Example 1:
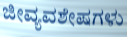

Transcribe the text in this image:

ಜೀವ್ಯವಶೇಷಗಳು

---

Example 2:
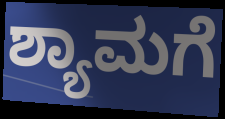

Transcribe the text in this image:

ಶ್ಯಾಮಗೆ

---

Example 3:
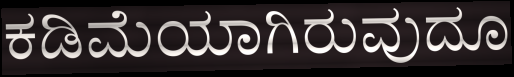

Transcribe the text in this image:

ಕಡಿಮೆಯಾಗಿರುವುದೂ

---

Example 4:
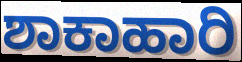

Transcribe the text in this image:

ಶಾಕಾಹಾರಿ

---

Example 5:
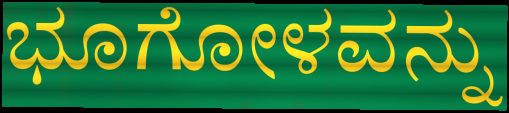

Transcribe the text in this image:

ಭೂಗೋಳವನ್ನು